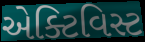
એક્ટિવિસ્ટ